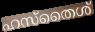
ഹസ്തൈശ്